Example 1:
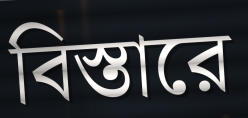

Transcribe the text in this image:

বিস্তারে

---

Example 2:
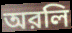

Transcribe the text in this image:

অরলি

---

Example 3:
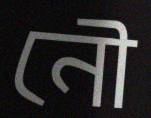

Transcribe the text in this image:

নৌ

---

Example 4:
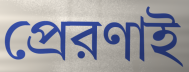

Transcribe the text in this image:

প্রেরণাই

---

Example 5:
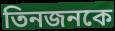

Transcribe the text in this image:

তিনজনকে